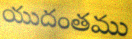
యుదంతము